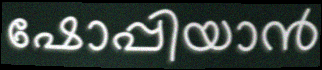
ഷോപ്പിയാൻ